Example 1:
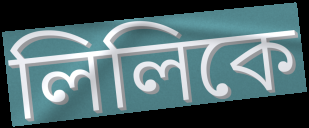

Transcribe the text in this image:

লিলিকে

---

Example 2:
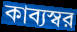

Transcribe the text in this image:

কাব্যস্বর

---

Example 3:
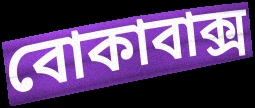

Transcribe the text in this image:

বোকাবাক্স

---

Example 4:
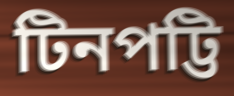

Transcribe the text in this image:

টিনপট্টি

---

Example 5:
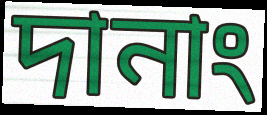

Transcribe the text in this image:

দানাং